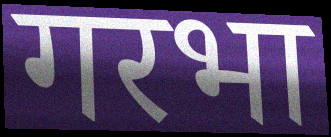
गरभा